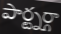
పార్ట్నర్గా